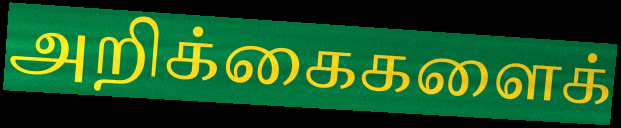
அறிக்கைகளைக்